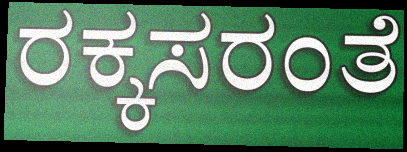
ರಕ್ಕಸರಂತೆ